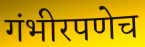
गंभीरपणेच